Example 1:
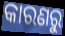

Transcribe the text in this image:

କାରଣରୁ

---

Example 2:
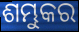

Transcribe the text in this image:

ଶମ୍ଭୁକର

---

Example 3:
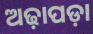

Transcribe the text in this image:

ଅଢ଼ାପଡ଼ା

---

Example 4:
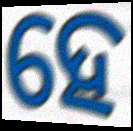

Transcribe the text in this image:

ହେ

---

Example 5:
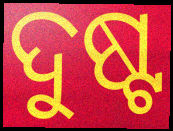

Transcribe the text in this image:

ଦୁଷ୍ଟ